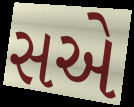
સએ